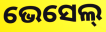
ଭେସେଲ୍